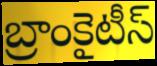
బ్రాంకైటీస్